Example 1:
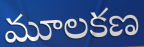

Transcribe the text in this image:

మూలకణ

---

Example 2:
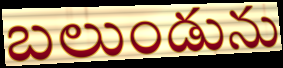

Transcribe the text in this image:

బలుండును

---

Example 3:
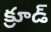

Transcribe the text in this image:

క్రూడ్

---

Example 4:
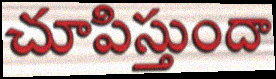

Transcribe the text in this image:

చూపిస్తుందా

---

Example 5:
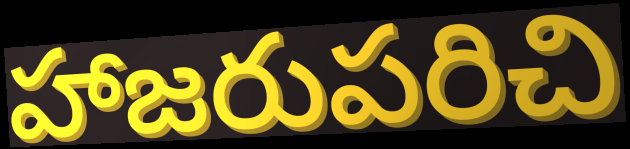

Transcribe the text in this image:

హాజరుపరిచి